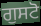
ਗੁਸਟੋ